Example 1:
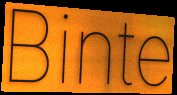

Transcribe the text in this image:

Binte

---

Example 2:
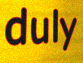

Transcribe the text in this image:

duly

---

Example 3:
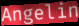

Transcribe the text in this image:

Angelin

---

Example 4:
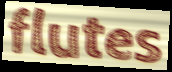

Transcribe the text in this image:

flutes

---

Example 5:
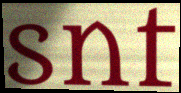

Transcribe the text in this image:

snt